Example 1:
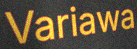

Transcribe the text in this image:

Variawa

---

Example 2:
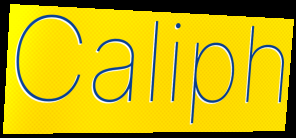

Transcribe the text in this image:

Caliph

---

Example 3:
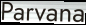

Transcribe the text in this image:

Parvana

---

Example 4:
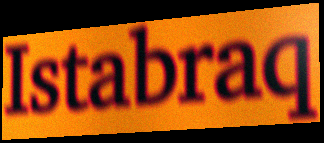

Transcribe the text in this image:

Istabraq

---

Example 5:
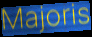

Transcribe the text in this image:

Majoris